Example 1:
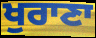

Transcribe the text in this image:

ਖੁਰਾਣਾ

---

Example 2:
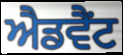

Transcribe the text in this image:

ਐਡਵੈਂਟ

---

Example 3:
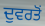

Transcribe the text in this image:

ਦੁਵਰਤੋਂ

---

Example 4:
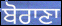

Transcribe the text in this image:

ਬੋਰਾਣਾ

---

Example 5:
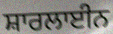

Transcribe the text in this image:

ਸ਼ਾਰਲਾਈਨ